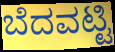
ಬೆದವಟ್ಟಿ